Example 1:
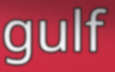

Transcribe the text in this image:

gulf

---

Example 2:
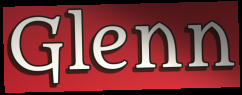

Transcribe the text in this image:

Glenn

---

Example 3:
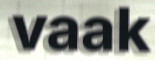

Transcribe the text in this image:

vaak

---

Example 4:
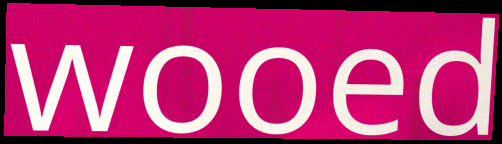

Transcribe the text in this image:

wooed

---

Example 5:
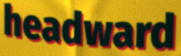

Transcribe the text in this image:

headward